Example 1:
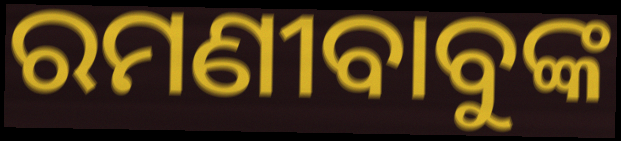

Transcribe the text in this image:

ରମଣୀବାବୁଙ୍କ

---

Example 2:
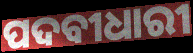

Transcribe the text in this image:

ପଦବୀଧାରୀ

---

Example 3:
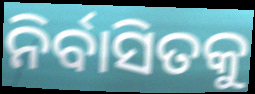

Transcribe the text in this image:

ନିର୍ବାସିତକୁ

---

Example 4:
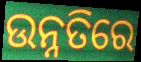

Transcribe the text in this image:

ଉନ୍ନତିରେ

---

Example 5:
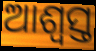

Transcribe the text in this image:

ଆଶ୍ୱସ୍ତ